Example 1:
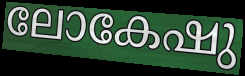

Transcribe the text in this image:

ലോകേഷു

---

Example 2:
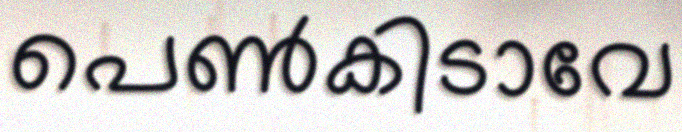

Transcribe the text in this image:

പെൺകിടാവേ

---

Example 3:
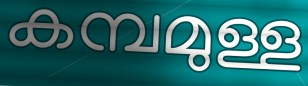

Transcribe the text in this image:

കമ്പമുള്ള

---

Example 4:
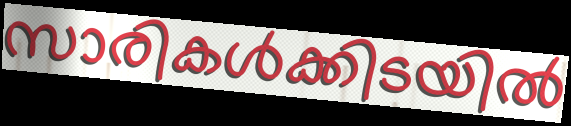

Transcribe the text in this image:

സാരികൾക്കിടയിൽ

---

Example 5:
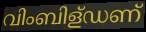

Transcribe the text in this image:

വിംബിള്ഡണ്